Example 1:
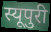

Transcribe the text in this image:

स्यूपुरी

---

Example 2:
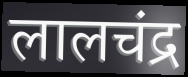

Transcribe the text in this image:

लालचंद्र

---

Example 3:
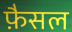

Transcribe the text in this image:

फ़ैसल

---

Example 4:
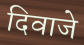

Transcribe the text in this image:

दिवाजे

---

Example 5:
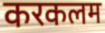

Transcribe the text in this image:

करकलम